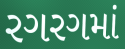
રગરગમાં